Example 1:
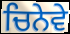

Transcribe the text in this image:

ਚਿਨੇਵੇ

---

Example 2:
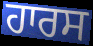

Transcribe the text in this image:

ਹਾਰਸ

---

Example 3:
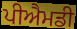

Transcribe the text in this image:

ਪੀਐਮਡੀ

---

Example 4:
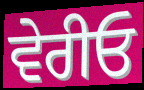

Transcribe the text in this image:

ਵੇਰੀਓ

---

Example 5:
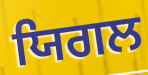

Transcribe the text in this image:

ਯਿਗਲ